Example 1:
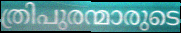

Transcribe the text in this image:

ത്രിപുരന്മാരുടെ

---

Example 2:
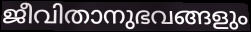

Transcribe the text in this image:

ജീവിതാനുഭവങ്ങളും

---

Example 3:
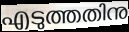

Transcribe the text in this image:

എടുത്തതിനു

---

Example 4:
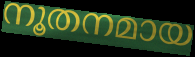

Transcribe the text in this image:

നൂതനമായ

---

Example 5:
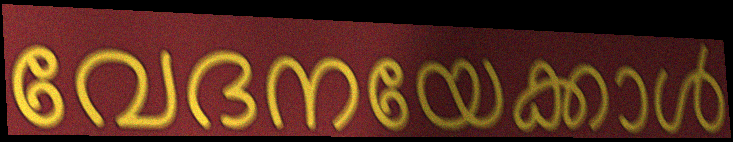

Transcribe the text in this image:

വേദനയേക്കാൾ